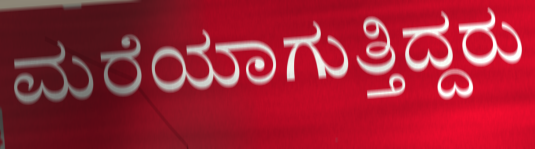
ಮರೆಯಾಗುತ್ತಿದ್ದರು